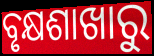
ବୃକ୍ଷଶାଖାରୁ